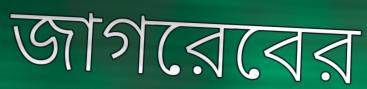
জাগরেবের